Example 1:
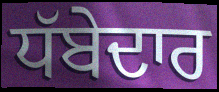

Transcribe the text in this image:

ਧੱਬੇਦਾਰ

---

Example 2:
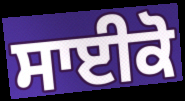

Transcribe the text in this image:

ਸਾਈਕੋ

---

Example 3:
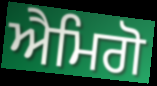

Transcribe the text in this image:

ਐਮਿਗੋ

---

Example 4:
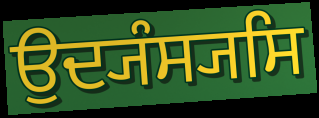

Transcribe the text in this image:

ਉਦ੍ਯੰਸ੍ਯਸਿ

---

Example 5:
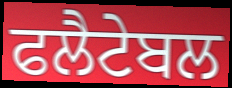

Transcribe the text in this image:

ਫਲੈਟੇਬਲ